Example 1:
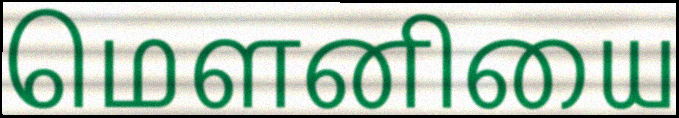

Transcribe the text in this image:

மௌனியை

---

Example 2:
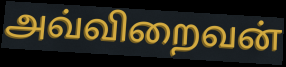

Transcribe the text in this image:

அவ்விறைவன்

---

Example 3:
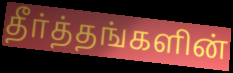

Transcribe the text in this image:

தீர்த்தங்களின்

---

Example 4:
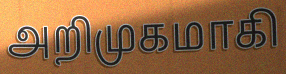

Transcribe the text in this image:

அறிமுகமாகி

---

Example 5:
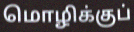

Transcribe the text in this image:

மொழிக்குப்